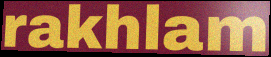
rakhlam